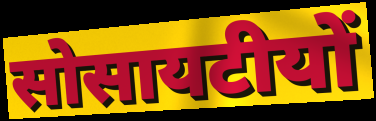
सोसायटीयों